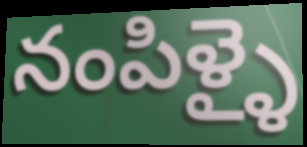
నంపిళ్ళై